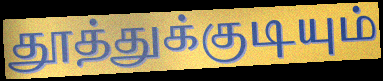
தூத்துக்குடியும்